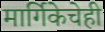
मार्गिकेचेही